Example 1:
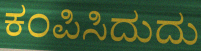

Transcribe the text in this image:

ಕಂಪಿಸಿದುದು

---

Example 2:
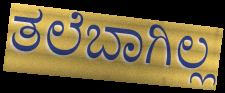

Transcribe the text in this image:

ತಲೆಬಾಗಿಲ್ಲ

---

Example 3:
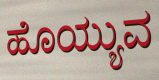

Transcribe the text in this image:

ಹೊಯ್ಯುವ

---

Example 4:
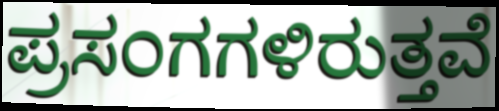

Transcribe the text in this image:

ಪ್ರಸಂಗಗಳಿರುತ್ತವೆ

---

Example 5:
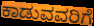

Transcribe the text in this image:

ಕಾಡುವವರಿಗೆ